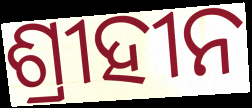
ଶ୍ରୀହୀନ